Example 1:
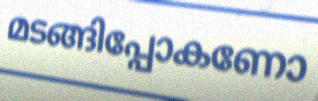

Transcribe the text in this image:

മടങ്ങിപ്പോകണോ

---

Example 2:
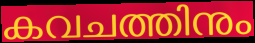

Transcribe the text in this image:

കവചത്തിനും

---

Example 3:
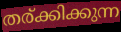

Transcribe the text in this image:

തര്ക്കിക്കുന്ന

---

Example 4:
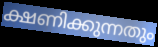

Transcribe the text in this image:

ക്ഷണിക്കുന്നതും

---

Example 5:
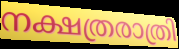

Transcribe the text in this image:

നക്ഷത്രരാത്രി